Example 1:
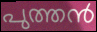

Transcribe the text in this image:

പുത്തൻ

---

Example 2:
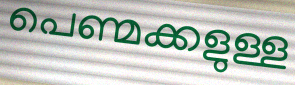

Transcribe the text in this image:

പെണ്മക്കളുള്ള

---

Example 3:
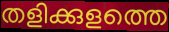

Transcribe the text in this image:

തളിക്കുളത്തെ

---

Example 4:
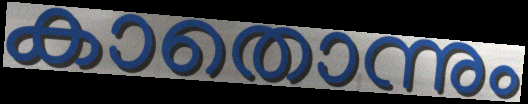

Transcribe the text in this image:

കാതൊന്നും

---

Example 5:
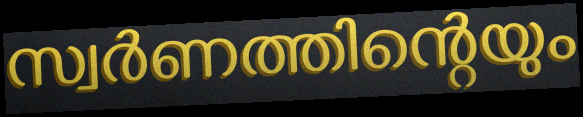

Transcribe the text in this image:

സ്വർണത്തിന്റെയും